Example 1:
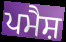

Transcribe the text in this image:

ਪਮੈਸ਼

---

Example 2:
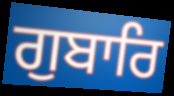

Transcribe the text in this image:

ਗੁਬਾਰਿ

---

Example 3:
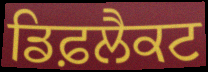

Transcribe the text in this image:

ਡਿਫ਼ਲੈਕਟ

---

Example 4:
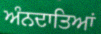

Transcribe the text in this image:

ਅੰਨਦਾਤਿਆਂ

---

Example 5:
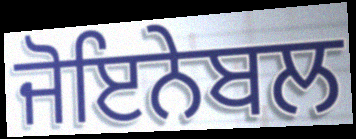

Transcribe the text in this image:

ਜੋਇਨੇਬਲ